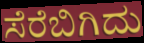
ಸೆರೆಬಿಗಿದು